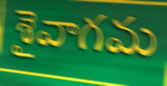
శైవాగమ